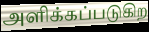
அளிக்கப்படுகிற